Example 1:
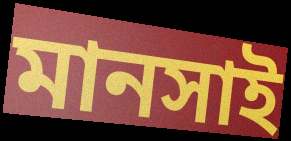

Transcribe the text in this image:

মানসাই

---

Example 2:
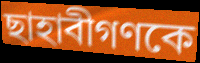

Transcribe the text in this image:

ছাহাবীগণকে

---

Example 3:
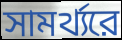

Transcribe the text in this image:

সামর্থ্যরে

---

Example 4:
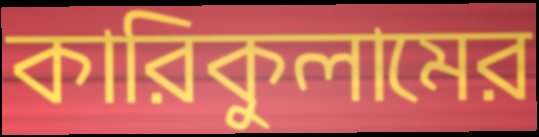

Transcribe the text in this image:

কারিকুলামের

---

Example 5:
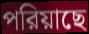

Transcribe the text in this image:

পরিয়াছে